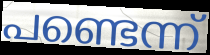
പണ്ടെന്ന്